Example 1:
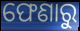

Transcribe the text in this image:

ଫେଣାରୁ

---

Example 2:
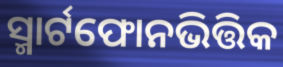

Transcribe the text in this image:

ସ୍ମାର୍ଟଫୋନଭିତ୍ତିକ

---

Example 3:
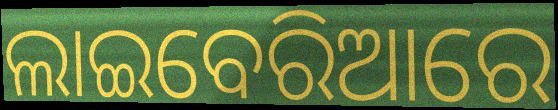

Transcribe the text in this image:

ଲାଇବେରିଆରେ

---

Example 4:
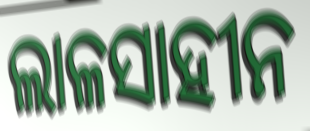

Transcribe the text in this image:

ଲାଳସାହୀନ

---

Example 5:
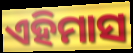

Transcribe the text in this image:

ଏହିମାସ